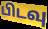
பிடவு